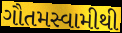
ગૌતમસ્વામીથી